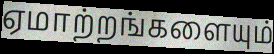
ஏமாற்றங்களையும்